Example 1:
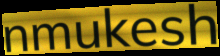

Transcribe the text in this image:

nmukesh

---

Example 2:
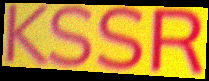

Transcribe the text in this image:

KSSR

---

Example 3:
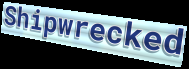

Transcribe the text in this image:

Shipwrecked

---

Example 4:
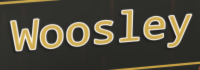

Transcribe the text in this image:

Woosley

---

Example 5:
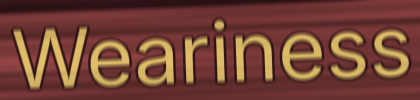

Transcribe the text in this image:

Weariness